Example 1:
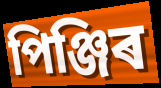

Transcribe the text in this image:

পিঞ্জিৰ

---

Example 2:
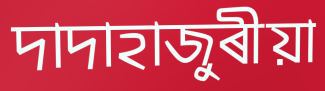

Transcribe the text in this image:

দাদাহাজুৰীয়া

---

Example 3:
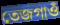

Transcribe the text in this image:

তেজগাওঁ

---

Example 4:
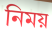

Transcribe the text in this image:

নিময়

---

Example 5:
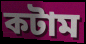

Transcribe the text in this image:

কটাম